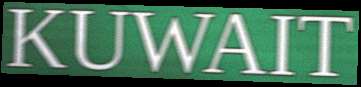
KUWAIT